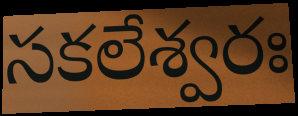
సకలేశ్వరః